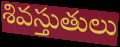
శివస్తుతులు